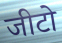
जीटो